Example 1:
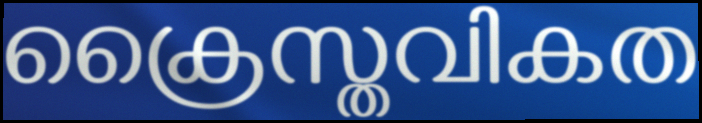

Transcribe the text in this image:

ക്രൈസ്തവികത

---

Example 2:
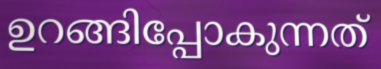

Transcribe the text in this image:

ഉറങ്ങിപ്പോകുന്നത്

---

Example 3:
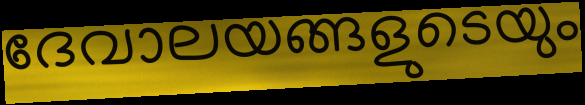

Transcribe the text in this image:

ദേവാലയങ്ങളുടെയും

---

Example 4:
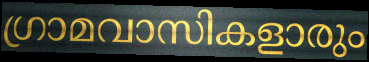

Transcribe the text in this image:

ഗ്രാമവാസികളാരും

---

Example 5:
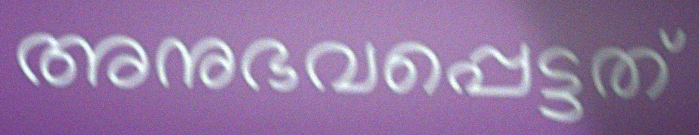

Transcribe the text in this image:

അനുഭവപ്പെട്ടത്